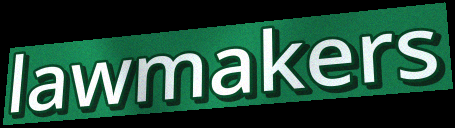
lawmakers